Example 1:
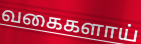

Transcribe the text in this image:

வகைகளாய்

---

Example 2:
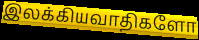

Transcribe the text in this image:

இலக்கியவாதிகளோ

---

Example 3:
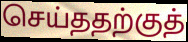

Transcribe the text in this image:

செய்ததற்குத்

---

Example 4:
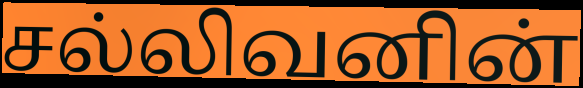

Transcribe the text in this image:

சல்லிவனின்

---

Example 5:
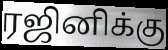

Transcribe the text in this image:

ரஜினிக்கு